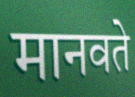
मानवते